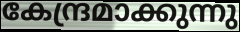
കേന്ദ്രമാക്കുന്നു